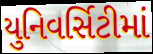
યુનિવર્સિટીમાં